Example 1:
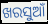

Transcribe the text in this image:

ଖରସୁଆଁ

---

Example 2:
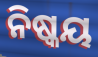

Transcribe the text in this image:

ନିଷ୍କୟ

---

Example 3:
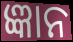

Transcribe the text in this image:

ଜ୍ଞାନ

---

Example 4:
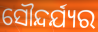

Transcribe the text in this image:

ସୌନ୍ଦର୍ଯ୍ୟର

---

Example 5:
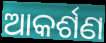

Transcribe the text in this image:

ଆକର୍ଶଣ